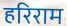
हरिराम